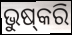
ଭୁଷ୍‍କରି